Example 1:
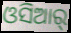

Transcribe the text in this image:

ଓସିଆର୍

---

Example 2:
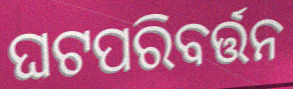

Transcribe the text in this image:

ଘଟପରିବର୍ତ୍ତନ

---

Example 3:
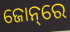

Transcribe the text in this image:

ଜୋନ୍‌ରେ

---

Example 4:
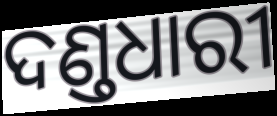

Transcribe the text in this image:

ଦଣ୍ଡଧାରୀ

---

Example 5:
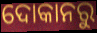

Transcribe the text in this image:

ଦୋକାନରୁ